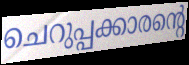
ചെറുപ്പക്കാരന്റെ